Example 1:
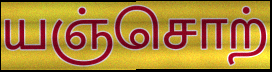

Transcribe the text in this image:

யஞ்சொற்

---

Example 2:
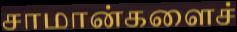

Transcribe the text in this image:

சாமான்களைச்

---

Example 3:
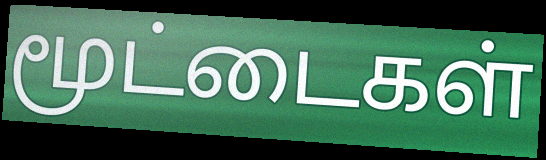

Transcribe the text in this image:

மூட்டைகள்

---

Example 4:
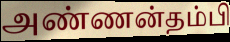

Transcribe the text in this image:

அண்ணன்தம்பி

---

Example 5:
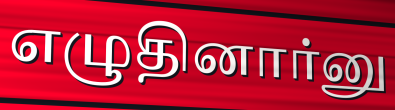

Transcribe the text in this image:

எழுதினார்னு